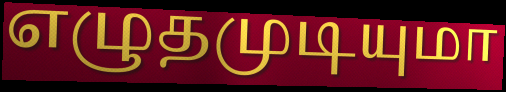
எழுதமுடியுமா